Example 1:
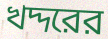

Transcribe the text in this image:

খদ্দরের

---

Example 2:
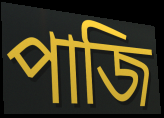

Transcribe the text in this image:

পাজি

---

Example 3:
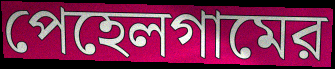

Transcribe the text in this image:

পেহেলগামের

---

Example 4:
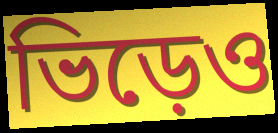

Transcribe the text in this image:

ভিড়েও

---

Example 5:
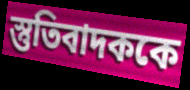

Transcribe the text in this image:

স্তুতিবাদককে